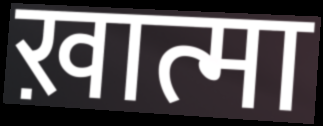
ख़ात्मा